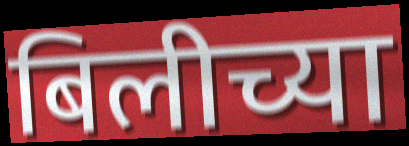
बिलीच्या